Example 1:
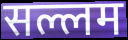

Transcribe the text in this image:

सल्लम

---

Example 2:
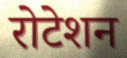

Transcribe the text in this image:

रोटेशन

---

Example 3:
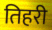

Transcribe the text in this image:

तिहरी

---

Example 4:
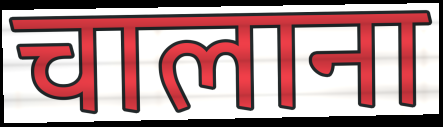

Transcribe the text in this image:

चालाना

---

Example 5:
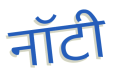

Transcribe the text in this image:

नॉटी